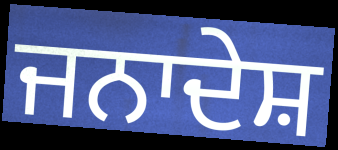
ਜਨਾਦੇਸ਼